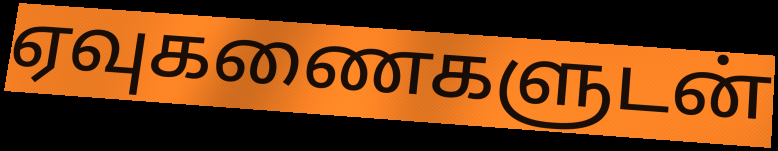
ஏவுகணைகளுடன்